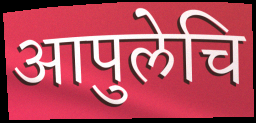
आपुलेचि